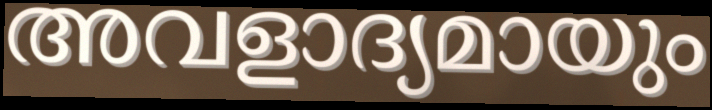
അവളാദ്യമായും